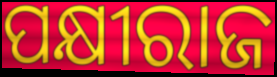
ପକ୍ଷୀରାଜ